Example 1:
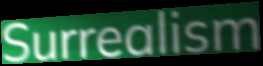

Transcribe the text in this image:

Surrealism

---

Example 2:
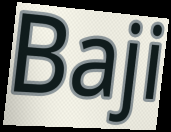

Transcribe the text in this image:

Baji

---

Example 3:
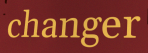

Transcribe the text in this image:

changer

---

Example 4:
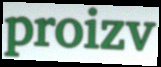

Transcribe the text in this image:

proizv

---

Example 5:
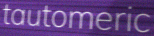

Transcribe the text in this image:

tautomeric